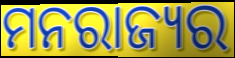
ମନରାଜ୍ୟର